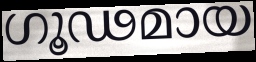
ഗൂഢമായ